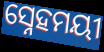
ସ୍ନେହମୟୀ